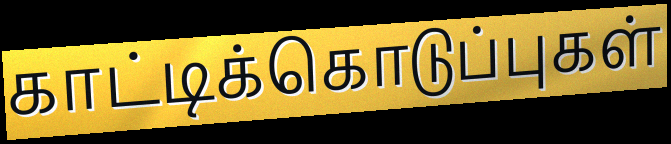
காட்டிக்கொடுப்புகள்